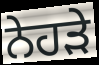
ਨੇਹੜੇ